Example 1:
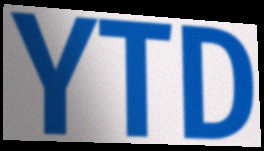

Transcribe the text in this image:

YTD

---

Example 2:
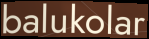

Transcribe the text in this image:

balukolar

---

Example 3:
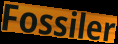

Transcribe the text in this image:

Fossiler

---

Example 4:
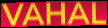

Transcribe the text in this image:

VAHAL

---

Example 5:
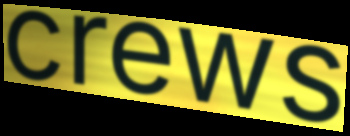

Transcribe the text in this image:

crews